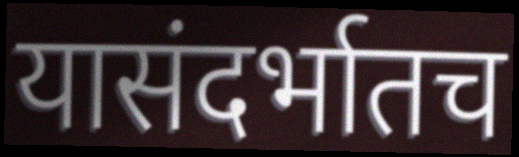
यासंदर्भातच